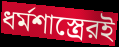
ধর্মশাস্ত্রেরই